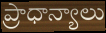
ప్రాధాన్యాలు